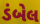
ડંબેલ